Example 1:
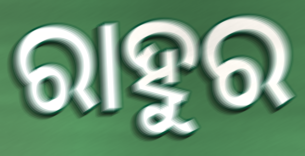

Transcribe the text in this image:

ରାହୁର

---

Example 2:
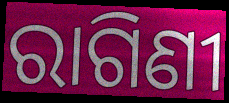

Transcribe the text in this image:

ରାଗିଣୀ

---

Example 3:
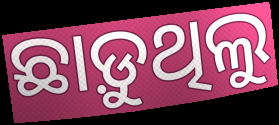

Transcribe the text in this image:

ଛାଡ଼ୁଥିଲୁ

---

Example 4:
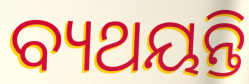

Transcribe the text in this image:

ବ୍ୟଥୟନ୍ତି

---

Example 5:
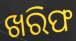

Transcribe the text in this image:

ଖରିଫ